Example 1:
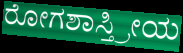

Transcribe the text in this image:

ರೋಗಶಾಸ್ತ್ರೀಯ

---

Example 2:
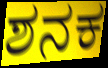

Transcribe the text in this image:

ಶನಕ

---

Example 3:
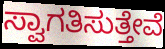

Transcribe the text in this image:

ಸ್ವಾಗತಿಸುತ್ತೇವೆ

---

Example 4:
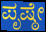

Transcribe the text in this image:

ಪೃಷ್ಠೇ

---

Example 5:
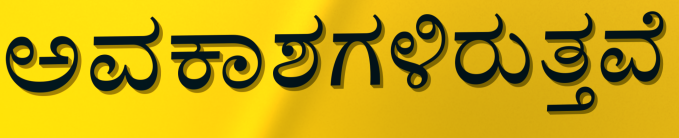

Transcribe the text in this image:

ಅವಕಾಶಗಳಿರುತ್ತವೆ